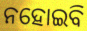
ନହୋଇବି